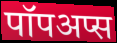
पॉपअप्स